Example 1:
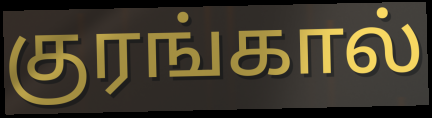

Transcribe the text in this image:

குரங்கால்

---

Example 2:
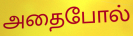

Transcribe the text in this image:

அதைபோல்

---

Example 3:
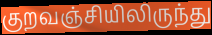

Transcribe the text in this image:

குறவஞ்சியிலிருந்து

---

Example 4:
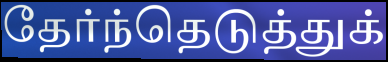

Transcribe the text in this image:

தேர்ந்தெடுத்துக்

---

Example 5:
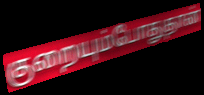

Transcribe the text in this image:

குறையும்போதுதான்